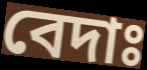
বেদাঃ